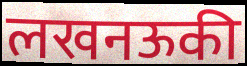
लखनऊकी